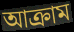
আক্ৰাম